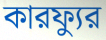
কারফ্যুর